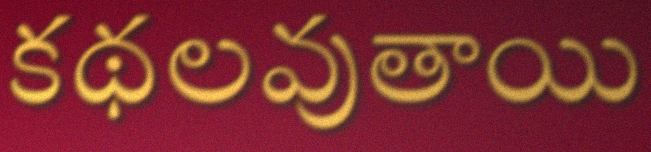
కథలవుతాయి